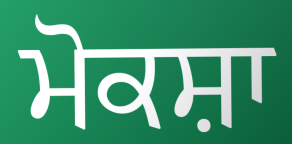
ਮੋਕਸ਼ਾ